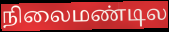
நிலைமண்டில